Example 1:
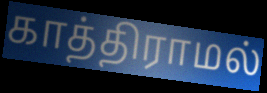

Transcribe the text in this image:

காத்திராமல்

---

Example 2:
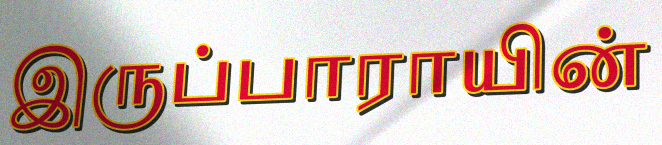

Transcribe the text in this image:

இருப்பாராயின்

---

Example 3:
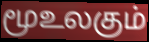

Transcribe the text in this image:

மூஉலகும்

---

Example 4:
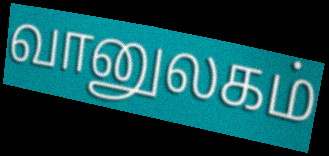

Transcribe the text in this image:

வானுலகம்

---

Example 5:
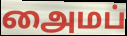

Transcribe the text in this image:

அைமப்